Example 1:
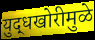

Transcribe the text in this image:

युद्धखोरीमुळे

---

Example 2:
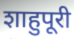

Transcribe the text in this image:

शाहुपूरी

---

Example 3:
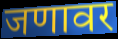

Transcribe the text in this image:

जणावर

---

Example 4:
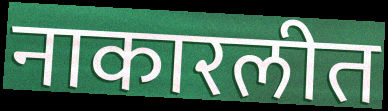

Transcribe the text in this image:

नाकारलीत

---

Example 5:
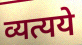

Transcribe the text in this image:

व्यत्यये